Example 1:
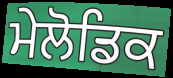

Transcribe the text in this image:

ਮੇਲੋਡਿਕ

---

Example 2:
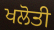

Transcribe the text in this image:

ਖਲੋਤੀ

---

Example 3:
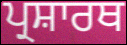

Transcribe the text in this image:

ਪ੍ਰਸ਼ਾਰਥ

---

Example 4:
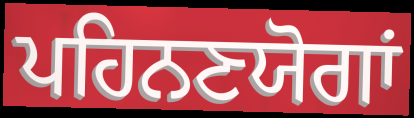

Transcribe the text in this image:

ਪਹਿਨਣਯੋਗਾਂ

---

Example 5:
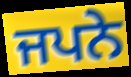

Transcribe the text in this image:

ਜਪਨੇ